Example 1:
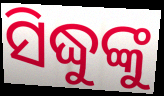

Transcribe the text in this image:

ସିଦ୍ଧୁଙ୍କୁ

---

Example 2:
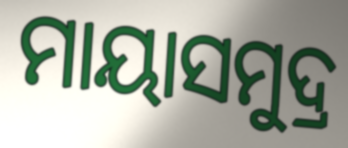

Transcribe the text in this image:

ମାୟାସମୁଦ୍ର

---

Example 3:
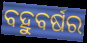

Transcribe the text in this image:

ବହୁବର୍ଷର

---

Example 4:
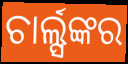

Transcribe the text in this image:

ଚାର୍ଲ୍ସଙ୍କର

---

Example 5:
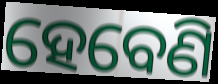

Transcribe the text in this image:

ହେବେଣି